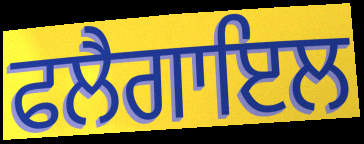
ਫਲੈਗਾਇਲ